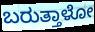
ಬರುತ್ತಾಳೋ